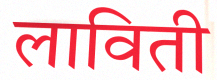
लाविती